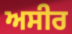
ਅਸੀਰ